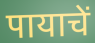
पायाचें